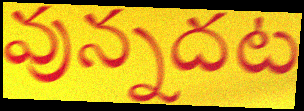
వున్నదట